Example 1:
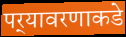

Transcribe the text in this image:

पर्यावरणाकडे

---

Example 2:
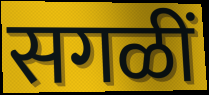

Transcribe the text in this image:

सगळीं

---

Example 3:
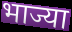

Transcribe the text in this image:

भाज्या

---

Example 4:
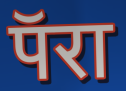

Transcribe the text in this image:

पॅरा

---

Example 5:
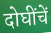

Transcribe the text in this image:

दोघींचें